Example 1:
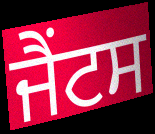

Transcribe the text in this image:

ਜੈਂਟਸ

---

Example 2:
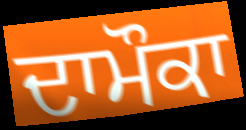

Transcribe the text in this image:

ਦਾਮੌਕਾ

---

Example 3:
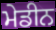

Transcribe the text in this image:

ਮੇਡੀਨ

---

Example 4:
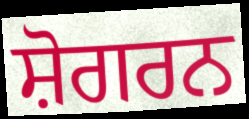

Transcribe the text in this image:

ਸ਼ੋਗਰਨ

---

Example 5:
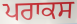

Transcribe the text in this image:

ਪਰਾਕਸ